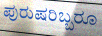
ಪುರುಷರಿಬ್ಬರೂ